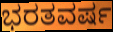
ಭರತವರ್ಷ